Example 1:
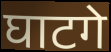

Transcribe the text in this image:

घाटगे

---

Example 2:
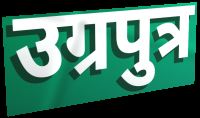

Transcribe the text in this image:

उग्रपुत्र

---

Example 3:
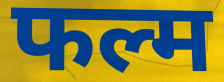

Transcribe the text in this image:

फल्म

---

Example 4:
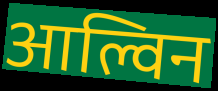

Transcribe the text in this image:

आल्विन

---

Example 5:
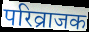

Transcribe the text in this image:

परिव्राजक